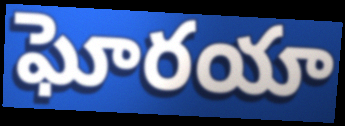
ఘోరయా